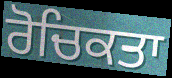
ਰੋਚਿਕਤਾ